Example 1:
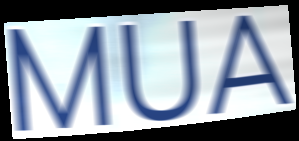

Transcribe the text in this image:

MUA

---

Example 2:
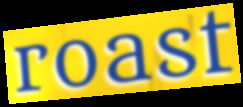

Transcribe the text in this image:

roast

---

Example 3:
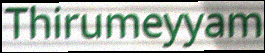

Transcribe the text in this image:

Thirumeyyam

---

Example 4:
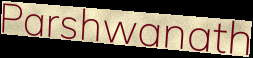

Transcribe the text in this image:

Parshwanath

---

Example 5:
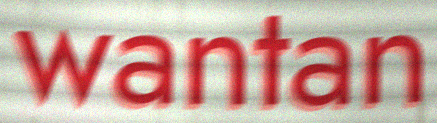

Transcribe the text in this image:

wantan